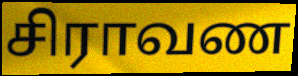
சிராவண